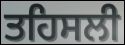
ਤਹਿਸਲੀ